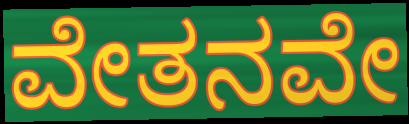
ವೇತನವೇ